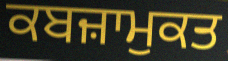
ਕਬਜ਼ਾਮੁਕਤ